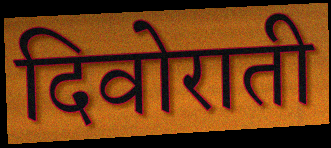
दिवोराती